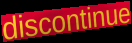
discontinue